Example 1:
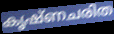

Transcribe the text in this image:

കൃഷ്ണചരിത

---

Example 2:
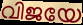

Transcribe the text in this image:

വിജയേ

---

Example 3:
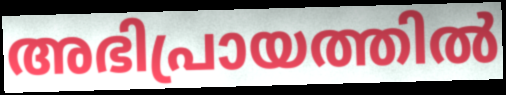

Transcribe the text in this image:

അഭിപ്രായത്തിൽ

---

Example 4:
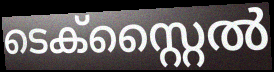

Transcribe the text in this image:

ടെക്സ്റ്റൈൽ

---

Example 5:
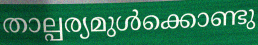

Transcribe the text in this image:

താല്പര്യമുൾക്കൊണ്ടു